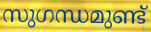
സുഗന്ധമുണ്ട്